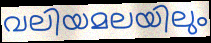
വലിയമലയിലും